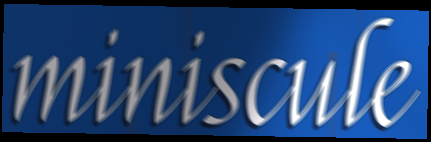
miniscule